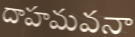
దాహమవనా